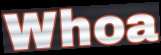
Whoa